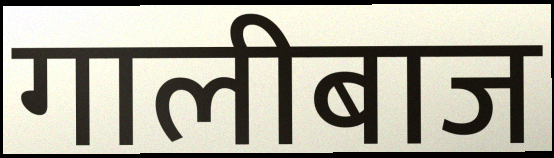
गालीबाज